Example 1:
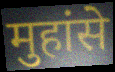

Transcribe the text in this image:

मुहांसे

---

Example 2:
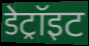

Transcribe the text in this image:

डेट्रॉइट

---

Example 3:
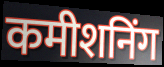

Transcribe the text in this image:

कमीशनिंग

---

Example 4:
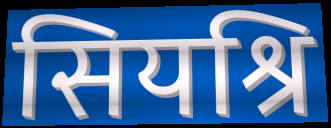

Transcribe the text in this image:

सियश्रि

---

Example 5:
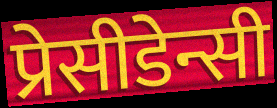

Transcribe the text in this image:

प्रेसीडेन्सी